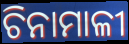
ଚିନାମାଳୀ